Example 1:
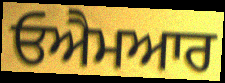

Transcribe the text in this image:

ਓਐਮਆਰ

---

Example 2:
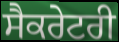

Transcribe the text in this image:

ਸੈਕਰੇਟਰੀ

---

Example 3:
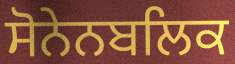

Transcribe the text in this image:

ਸੋਨੇਨਬਲਿਕ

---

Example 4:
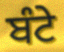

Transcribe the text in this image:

ਬੰਟੇ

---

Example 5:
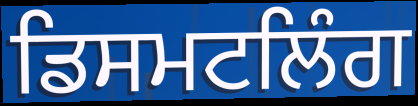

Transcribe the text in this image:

ਡਿਸਮਟਲਿੰਗ